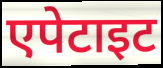
एपेटाइट